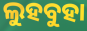
ଲୁହବୁହା